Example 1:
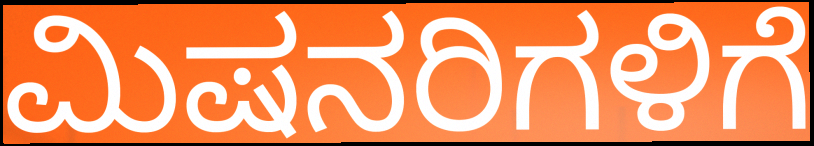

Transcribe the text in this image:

ಮಿಷನರಿಗಳಿಗೆ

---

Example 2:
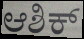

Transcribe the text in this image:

ಆಶಿಕ್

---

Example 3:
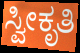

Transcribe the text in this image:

ಸ್ವೀಕೃತಿ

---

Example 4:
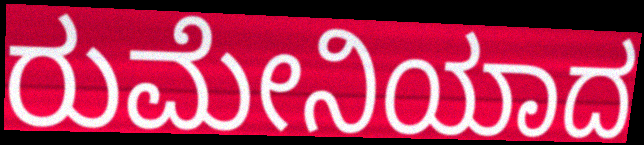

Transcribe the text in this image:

ರುಮೇನಿಯಾದ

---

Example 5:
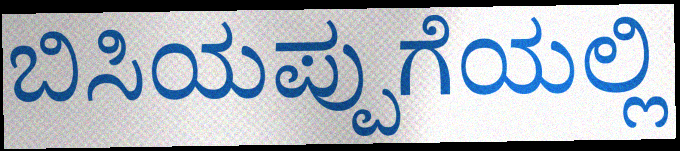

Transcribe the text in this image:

ಬಿಸಿಯಪ್ಪುಗೆಯಲ್ಲಿ